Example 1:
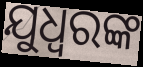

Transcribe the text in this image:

ଯୁଧ୍ୱରଙ୍କ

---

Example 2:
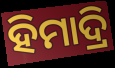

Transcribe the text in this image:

ହିମାଦ୍ରି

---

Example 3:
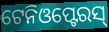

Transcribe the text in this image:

ଟେନିଓପ୍ଟେରସ୍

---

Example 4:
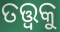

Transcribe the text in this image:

ତତ୍ତ୍ଵକୁ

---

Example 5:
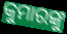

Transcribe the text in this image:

କୁମାରଙ୍କୁ